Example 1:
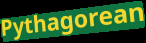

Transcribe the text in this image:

Pythagorean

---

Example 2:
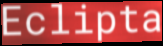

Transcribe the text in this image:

Eclipta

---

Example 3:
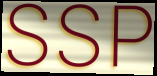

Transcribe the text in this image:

SSP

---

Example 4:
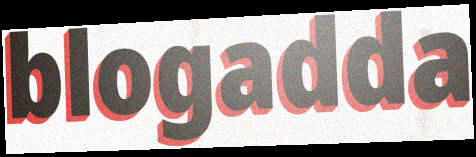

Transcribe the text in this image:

blogadda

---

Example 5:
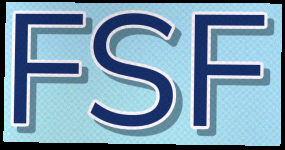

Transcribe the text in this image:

FSF